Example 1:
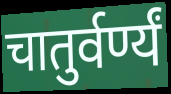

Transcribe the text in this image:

चातुर्वर्ण्यं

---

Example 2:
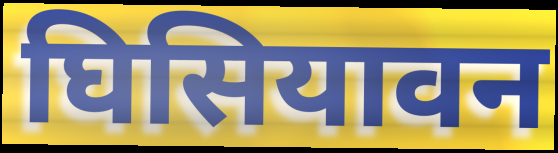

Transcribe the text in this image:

घिसियावन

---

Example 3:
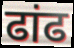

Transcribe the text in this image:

ढांढ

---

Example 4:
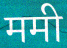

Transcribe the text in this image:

ममी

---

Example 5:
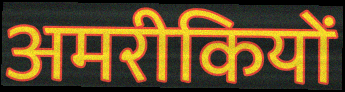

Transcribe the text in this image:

अमरीकियों